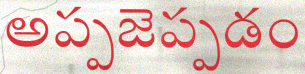
అప్పజెప్పడం